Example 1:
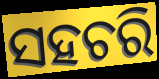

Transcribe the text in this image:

ସହଚରି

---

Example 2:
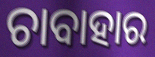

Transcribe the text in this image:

ଚାବାହାର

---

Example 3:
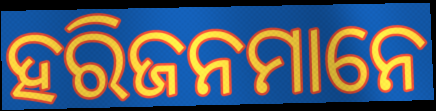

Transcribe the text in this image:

ହରିଜନମାନେ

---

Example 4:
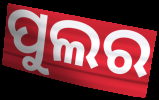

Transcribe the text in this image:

ପୁଲର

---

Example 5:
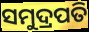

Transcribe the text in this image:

ସମୁଦ୍ରପତି